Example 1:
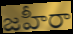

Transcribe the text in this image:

జహీరా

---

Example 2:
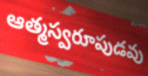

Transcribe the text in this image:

ఆత్మస్వరూపుడవు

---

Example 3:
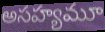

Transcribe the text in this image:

అసహ్యమూ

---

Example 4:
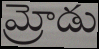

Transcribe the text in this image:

మ్రోడు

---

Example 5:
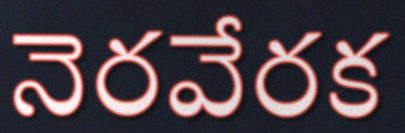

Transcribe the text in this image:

నెరవేరక